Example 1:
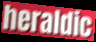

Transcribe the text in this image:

heraldic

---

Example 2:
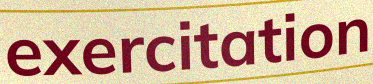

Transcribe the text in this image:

exercitation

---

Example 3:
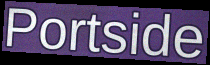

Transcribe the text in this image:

Portside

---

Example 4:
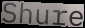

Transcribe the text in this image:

Shure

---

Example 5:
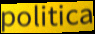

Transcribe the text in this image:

politica